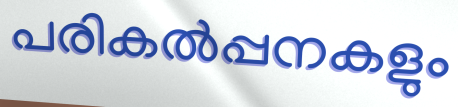
പരികൽപ്പനകളും